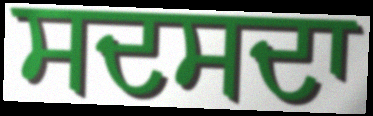
ਸਦਸਦਾ